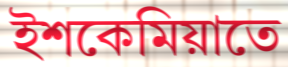
ইশকেমিয়াতে